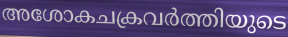
അശോകചക്രവർത്തിയുടെ